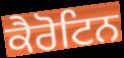
ਕੈਰੋਟਿਨ